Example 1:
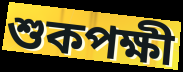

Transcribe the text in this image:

শুকপক্ষী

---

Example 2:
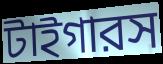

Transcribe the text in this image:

টাইগারস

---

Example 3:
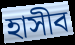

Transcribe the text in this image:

হাসীব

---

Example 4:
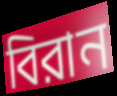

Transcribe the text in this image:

বিরান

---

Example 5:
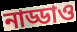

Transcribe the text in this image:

নাড্ডাও